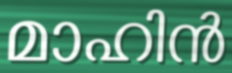
മാഹിൻ